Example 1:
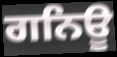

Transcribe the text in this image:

ਗਨਿਊ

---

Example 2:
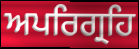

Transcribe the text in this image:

ਅਪਰਿਗ੍ਰਹਿ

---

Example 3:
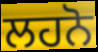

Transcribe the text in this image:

ਲਹਨੋ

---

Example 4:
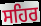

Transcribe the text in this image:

ਸਹਿਰ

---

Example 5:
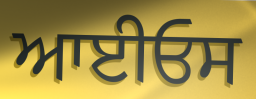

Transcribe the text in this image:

ਆਈਓਸ